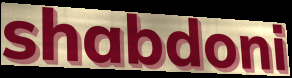
shabdoni